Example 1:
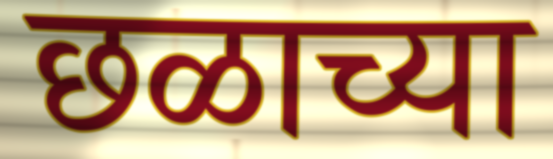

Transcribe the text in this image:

छळाच्या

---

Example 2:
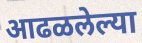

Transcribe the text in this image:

आढळलेल्या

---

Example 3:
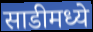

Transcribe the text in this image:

साडीमध्ये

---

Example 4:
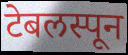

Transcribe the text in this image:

टेबलस्पून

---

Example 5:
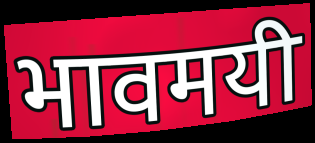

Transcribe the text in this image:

भावमयी